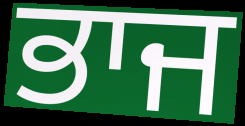
ਭਾਜ